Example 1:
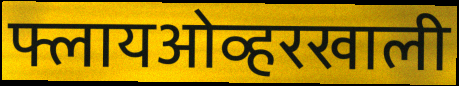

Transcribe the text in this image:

फ्लायओव्हरखाली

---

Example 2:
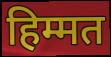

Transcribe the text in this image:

हिम्मत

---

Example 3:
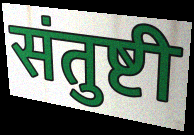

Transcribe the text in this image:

संतुष्टी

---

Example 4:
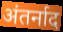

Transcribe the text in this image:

अंतर्नाद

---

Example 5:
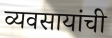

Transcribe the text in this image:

व्यवसायांची